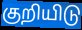
குறியிடு